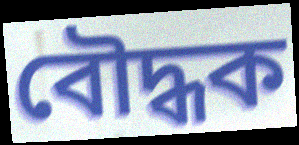
বৌদ্ধক